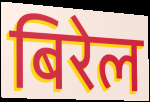
बिरेल